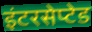
इंटरसेप्टेड